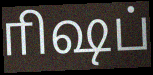
ரிஷப்